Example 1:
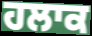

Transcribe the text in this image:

ਹਲਾਕ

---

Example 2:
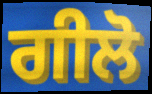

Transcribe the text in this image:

ਗੀਲੋ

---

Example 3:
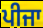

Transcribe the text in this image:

ਪੀਜਾ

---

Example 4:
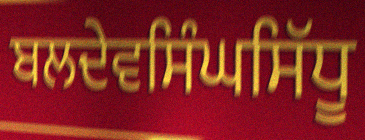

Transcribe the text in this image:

ਬਲਦੇਵਸਿੰਘਸਿੱਧੂ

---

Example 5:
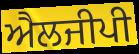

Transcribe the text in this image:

ਐਲਜੀਪੀ